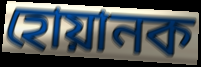
হোয়ানক